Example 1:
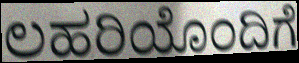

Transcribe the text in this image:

ಲಹರಿಯೊಂದಿಗೆ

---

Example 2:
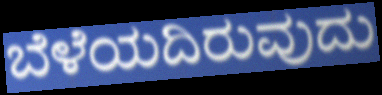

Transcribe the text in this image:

ಬೆಳೆಯದಿರುವುದು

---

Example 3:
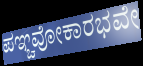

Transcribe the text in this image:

ಪಞ್ಚವೋಕಾರಭವೇ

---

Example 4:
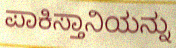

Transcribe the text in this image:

ಪಾಕಿಸ್ತಾನಿಯನ್ನು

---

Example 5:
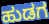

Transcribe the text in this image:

ಹುಡಗ